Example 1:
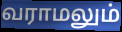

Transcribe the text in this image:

வராமலும்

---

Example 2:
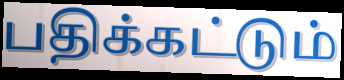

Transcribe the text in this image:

பதிக்கட்டும்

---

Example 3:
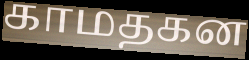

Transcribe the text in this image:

காமதகன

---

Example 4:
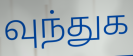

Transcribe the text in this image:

வுந்துக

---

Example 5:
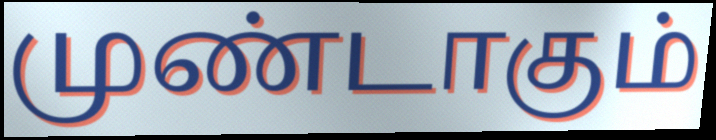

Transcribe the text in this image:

முண்டாகும்